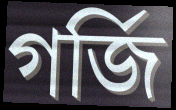
গৰ্জি